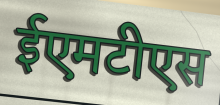
ईएमटीएस